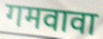
गमवावा